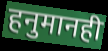
हनुमानही